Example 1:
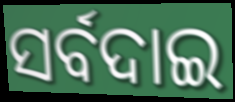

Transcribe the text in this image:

ସର୍ବଦାଇ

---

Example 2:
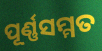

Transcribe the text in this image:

ପୂର୍ଣ୍ଣସମ୍ମତ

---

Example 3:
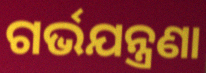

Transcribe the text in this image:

ଗର୍ଭଯନ୍ତ୍ରଣା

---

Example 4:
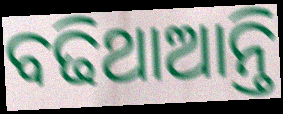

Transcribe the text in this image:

ବଢିଥାଆନ୍ତି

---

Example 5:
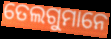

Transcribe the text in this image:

ତେଲଗୁମାନେ